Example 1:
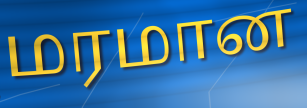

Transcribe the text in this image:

மரமான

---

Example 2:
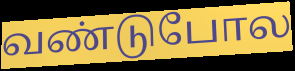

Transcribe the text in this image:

வண்டுபோல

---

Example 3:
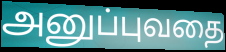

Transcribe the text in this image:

அனுப்புவதை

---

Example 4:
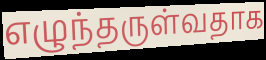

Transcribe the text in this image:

எழுந்தருள்வதாக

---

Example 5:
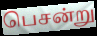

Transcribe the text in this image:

பெசன்று